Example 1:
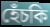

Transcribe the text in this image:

হেঁচকি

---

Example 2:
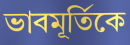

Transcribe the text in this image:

ভাবমূর্তিকে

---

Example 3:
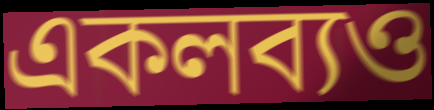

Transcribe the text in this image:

একলব্যও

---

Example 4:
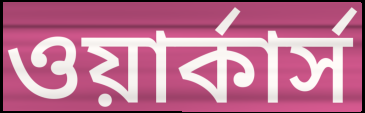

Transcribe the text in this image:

ওয়ার্কার্স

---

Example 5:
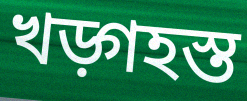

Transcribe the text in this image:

খড়্গহস্ত